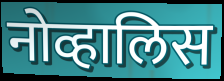
नोव्हालिस